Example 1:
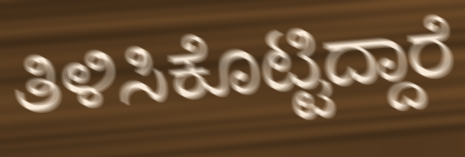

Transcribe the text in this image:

ತಿಳಿಸಿಕೊಟ್ಟಿದ್ದಾರೆ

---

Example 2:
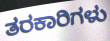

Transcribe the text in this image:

ತರಕಾರಿಗಳು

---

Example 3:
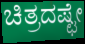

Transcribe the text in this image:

ಚಿತ್ರದಷ್ಟೇ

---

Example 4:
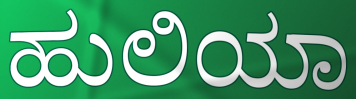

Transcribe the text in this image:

ಹುಲಿಯಾ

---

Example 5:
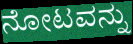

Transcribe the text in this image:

ನೋಟವನ್ನು